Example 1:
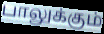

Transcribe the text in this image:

பாலுக்கும்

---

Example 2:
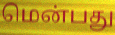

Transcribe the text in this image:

மென்பது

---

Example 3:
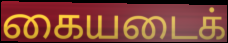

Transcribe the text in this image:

கையடைக்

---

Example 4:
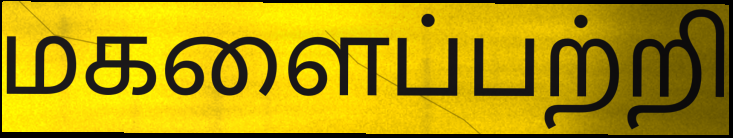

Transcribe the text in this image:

மகளைப்பற்றி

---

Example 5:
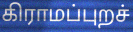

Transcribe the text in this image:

கிராமப்புறச்